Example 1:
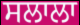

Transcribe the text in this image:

ਸਲਾਲਾ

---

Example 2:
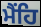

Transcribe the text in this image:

ਮੈਂਹਿ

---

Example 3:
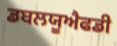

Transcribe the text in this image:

ਡਬਲਯੂਐਫਡੀ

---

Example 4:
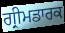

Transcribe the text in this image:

ਗ੍ਰੀਮਡਾਰਕ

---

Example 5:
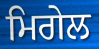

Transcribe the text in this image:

ਮਿਗੇਲ